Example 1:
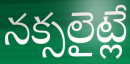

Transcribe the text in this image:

నక్సలైట్లే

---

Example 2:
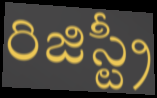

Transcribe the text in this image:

రిజిస్ట్రీ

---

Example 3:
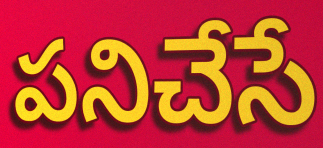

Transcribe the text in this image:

పనిచేసే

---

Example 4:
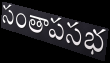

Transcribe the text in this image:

సంతాపసభ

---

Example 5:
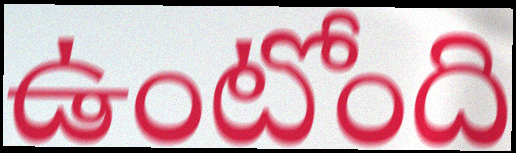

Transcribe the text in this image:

ఉంటోంది